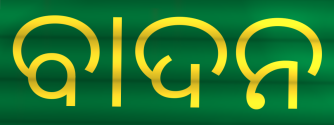
ବାଦନ